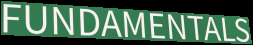
FUNDAMENTALS